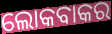
ଲୋକବାକର